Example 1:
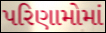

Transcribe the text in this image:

પરિણામોમાં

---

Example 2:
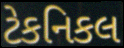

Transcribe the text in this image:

ટેકનિકલ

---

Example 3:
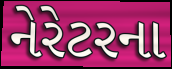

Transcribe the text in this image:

નેરેટરના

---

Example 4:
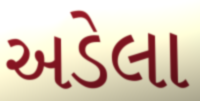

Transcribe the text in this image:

અડેલા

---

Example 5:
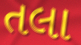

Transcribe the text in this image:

તલા